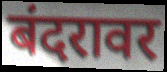
बंदरावर